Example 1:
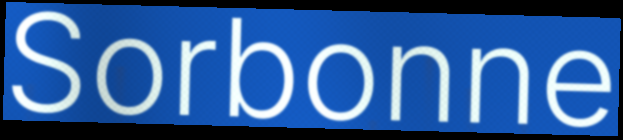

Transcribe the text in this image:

Sorbonne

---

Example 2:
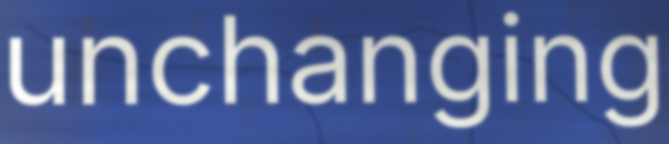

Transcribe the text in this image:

unchanging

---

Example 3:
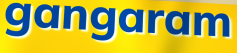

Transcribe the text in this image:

gangaram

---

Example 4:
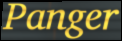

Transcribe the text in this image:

Panger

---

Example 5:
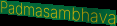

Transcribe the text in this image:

Padmasambhava